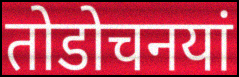
तोडोचनयां